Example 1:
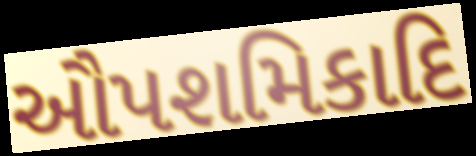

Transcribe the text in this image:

ઔપશમિકાદિ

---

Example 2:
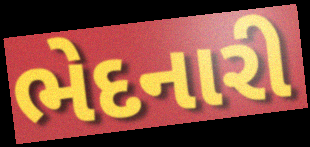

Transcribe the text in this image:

ભેદનારી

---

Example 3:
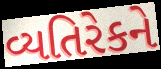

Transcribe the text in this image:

વ્યતિરેકને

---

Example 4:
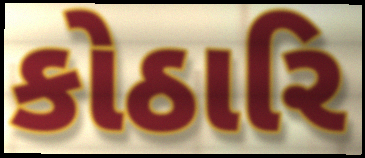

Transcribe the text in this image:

કોઠારિ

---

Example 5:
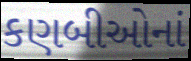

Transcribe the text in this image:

કણબીઓનાં